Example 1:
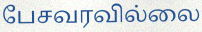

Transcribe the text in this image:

பேசவரவில்லை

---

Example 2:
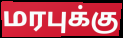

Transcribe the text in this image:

மரபுக்கு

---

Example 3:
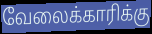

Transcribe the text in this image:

வேலைக்காரிக்கு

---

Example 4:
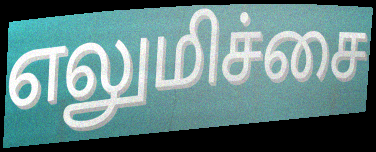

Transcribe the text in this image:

எலுமிச்சை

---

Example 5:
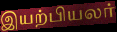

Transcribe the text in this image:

இயற்பியலர்